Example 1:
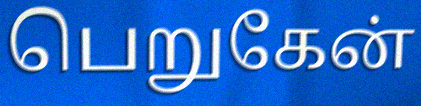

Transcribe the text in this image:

பெறுகேன்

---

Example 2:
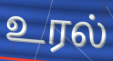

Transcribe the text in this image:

உரல்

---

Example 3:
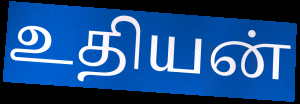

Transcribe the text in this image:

உதியன்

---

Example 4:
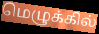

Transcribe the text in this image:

மெழுக்கில்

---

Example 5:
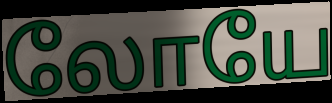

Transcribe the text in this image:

லோயே